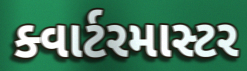
ક્વાર્ટરમાસ્ટર